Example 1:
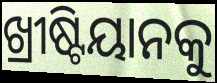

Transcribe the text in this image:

ଖ୍ରୀଷ୍ଟିୟାନକୁ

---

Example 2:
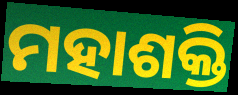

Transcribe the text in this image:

ମହାଶକ୍ତି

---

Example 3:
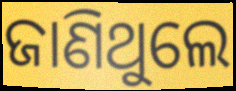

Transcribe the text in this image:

ଜାଣିଥୁଲେ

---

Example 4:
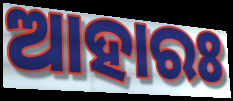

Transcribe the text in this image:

ଆହାରଃ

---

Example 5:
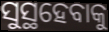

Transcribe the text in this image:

ସୁସ୍ଥହେବାକୁ